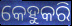
କେହୁକରି